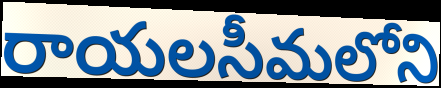
రాయలసీమలోని